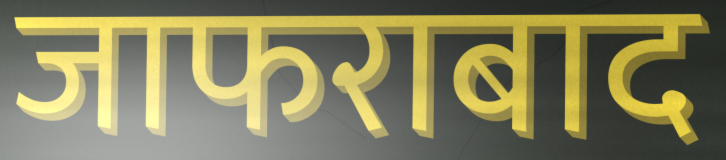
जाफराबाद